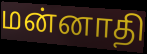
மன்னாதி